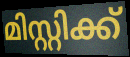
മിസ്റ്റിക്ക്